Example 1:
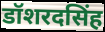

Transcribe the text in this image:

डॉशरदसिंह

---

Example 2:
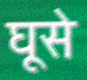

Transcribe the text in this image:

घूसे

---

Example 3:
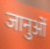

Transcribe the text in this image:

जानुओं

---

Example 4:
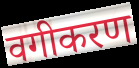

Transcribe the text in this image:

वगीकरण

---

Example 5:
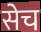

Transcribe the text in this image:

सेच